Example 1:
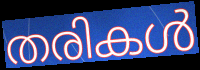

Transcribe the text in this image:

തരികൾ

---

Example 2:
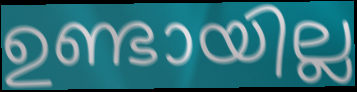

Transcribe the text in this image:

ഉണ്ടായില്ല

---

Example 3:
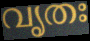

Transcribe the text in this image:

വൃതഃ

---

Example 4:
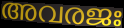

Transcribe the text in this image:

അവരജഃ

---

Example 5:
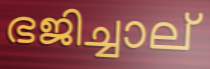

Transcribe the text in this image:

ഭജിച്ചാല്